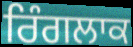
ਰਿੰਗਲਾਕ